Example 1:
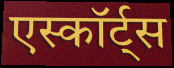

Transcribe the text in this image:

एस्कॉर्ट्स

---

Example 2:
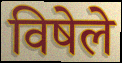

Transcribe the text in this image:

विषेले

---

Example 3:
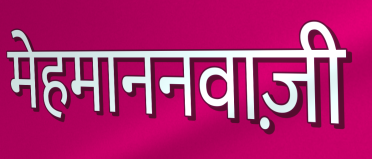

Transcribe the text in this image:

मेहमाननवाज़ी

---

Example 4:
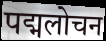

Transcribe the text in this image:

पद्मलोचन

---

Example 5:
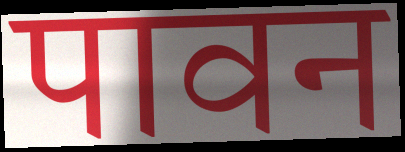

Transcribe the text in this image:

पावन